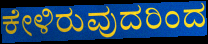
ಕೇಳಿರುವುದರಿಂದ